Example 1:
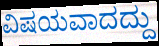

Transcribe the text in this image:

ವಿಷಯವಾದದ್ದು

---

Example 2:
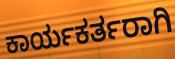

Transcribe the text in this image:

ಕಾರ್ಯಕರ್ತರಾಗಿ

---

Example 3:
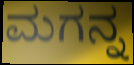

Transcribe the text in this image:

ಮಗನ್ನ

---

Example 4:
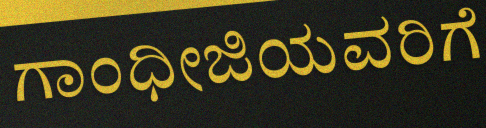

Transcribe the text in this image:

ಗಾಂಧೀಜಿಯವರಿಗೆ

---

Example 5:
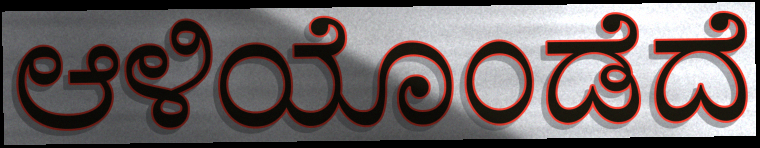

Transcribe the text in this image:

ಆಳಿಯೊಂಡೆದೆ